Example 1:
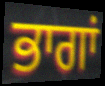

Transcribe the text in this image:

ਭਾਗਾਂ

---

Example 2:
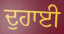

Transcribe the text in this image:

ਦੁਹਾਈ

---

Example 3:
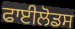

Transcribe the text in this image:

ਫਾਈਲੋਡਸ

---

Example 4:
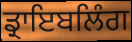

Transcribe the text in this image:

ਡ੍ਰਾਇਬਲਿੰਗ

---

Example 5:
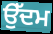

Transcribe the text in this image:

ਉੱਦਮ